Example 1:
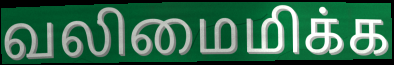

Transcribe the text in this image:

வலிமைமிக்க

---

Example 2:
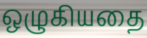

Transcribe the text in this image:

ஒழுகியதை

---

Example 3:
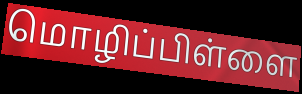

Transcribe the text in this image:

மொழிப்பிள்ளை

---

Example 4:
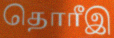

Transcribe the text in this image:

தொரீஇ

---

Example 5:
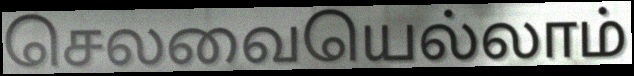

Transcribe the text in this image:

செலவையெல்லாம்